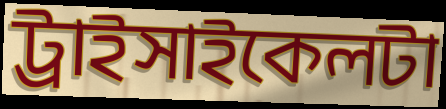
ট্রাইসাইকেলটা